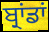
ਬ੍ਰਾਂਡਾਂ